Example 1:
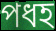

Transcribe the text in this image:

পধহ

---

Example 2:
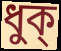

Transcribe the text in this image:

ধুক্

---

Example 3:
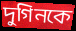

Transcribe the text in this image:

দুগিনকে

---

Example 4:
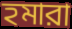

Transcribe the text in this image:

হমারা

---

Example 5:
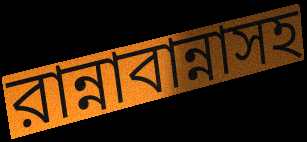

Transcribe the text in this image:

রান্নাবান্নাসহ